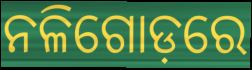
ନଳିଗୋଡ଼ରେ